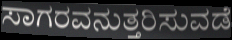
ಸಾಗರವನುತ್ತರಿಸುವಡೆ